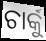
ଚାର୍କୁ